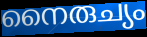
നൈരുച്യം